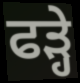
ਫੜ੍ਹੇ